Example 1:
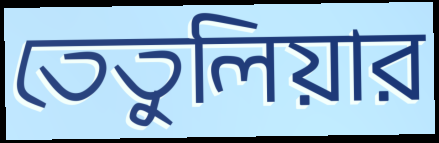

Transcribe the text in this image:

তেতুলিয়ার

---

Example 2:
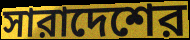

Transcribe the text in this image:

সারাদেশের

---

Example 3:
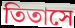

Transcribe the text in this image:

তিতাসে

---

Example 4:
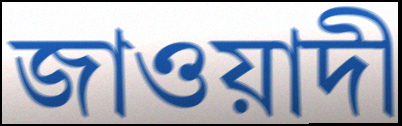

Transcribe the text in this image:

জাওয়াদী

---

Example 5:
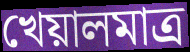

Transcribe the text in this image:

খেয়ালমাত্র